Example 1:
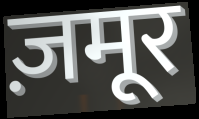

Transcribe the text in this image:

ज़मूर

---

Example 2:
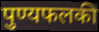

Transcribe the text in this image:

पुण्यफलकी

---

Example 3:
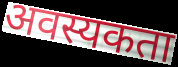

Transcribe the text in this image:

अवस्यकता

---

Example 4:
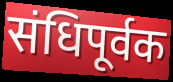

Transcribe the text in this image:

संधिपूर्वक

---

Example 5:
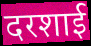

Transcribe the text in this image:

दरशाई